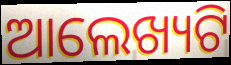
ଆଲେଖ୍ୟଟି